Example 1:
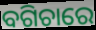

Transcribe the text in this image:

ବଗିଚାରେ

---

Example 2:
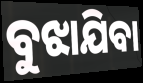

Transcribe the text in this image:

ବୁଝାଯିବା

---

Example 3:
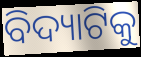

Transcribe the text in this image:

ବିଦ୍ୟାଟିକୁ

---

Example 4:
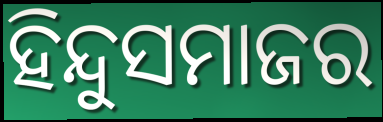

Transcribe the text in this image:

ହିନ୍ଦୁସମାଜର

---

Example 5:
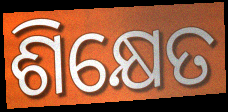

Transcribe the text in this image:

ଶିକ୍ଷେତ